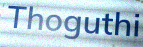
Thoguthi